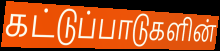
கட்டுப்பாடுகளின்